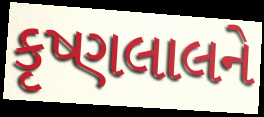
કૃષ્ણલાલને